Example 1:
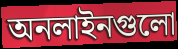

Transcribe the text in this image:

অনলাইনগুলো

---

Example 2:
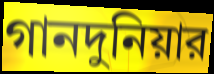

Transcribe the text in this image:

গানদুনিয়ার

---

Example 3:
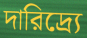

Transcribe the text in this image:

দারিদ্র্যে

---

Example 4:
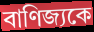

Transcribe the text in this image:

বাণিজ্যকে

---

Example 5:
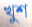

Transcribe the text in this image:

খুশ